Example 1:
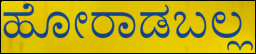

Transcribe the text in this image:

ಹೋರಾಡಬಲ್ಲ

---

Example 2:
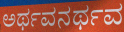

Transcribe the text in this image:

ಅರ್ಥವನರ್ಥವ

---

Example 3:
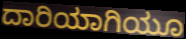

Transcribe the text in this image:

ದಾರಿಯಾಗಿಯೂ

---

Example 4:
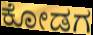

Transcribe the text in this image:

ಕೋಡಗ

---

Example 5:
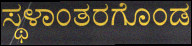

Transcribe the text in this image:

ಸ್ಥಳಾಂತರಗೊಂಡ